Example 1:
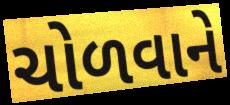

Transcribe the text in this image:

ચોળવાને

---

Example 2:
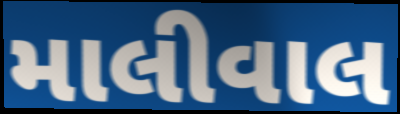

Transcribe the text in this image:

માલીવાલ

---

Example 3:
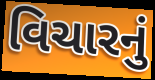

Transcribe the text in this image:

વિચારનું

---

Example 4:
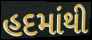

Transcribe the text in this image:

હદમાંથી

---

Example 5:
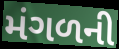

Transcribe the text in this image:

મંગળની